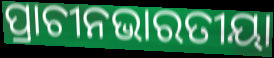
ପ୍ରାଚୀନଭାରତୀୟା